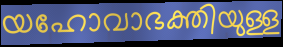
യഹോവാഭക്തിയുള്ള